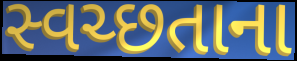
સ્વચ્છતાના